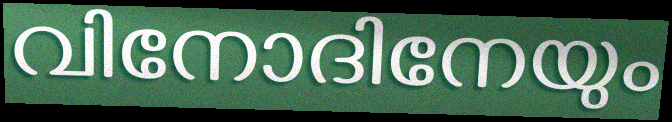
വിനോദിനേയും